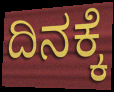
ದಿನಕ್ಕೆ